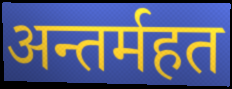
अन्तर्महत